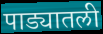
पाड्यातली